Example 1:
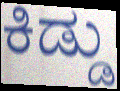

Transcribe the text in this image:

ಕಿಡ್ಡು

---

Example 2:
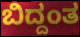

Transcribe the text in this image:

ಬಿದ್ದಂತ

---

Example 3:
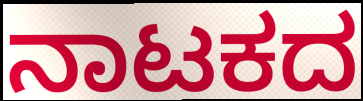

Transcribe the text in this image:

ನಾಟಕದ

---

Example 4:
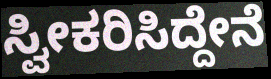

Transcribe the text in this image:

ಸ್ವೀಕರಿಸಿದ್ದೇನೆ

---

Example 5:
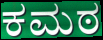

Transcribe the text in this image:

ಕಮಠ